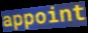
appoint